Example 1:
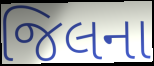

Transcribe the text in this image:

જિલના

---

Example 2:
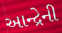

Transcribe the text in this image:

આન્દ્રેની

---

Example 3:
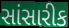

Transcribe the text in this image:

સાંસારીક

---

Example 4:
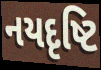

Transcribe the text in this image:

નયદૃષ્ટિ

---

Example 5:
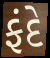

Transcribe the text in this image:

ફંદે